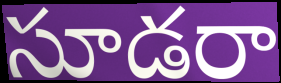
సూడరా